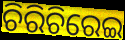
ଚିରିଚିରେଇ